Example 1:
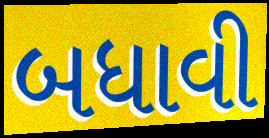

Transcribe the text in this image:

બધાવી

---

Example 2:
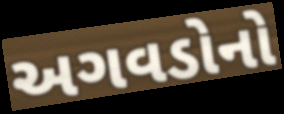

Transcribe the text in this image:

અગવડોનો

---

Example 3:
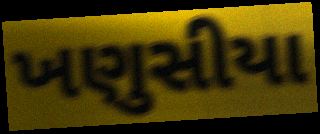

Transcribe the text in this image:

ખણુસીયા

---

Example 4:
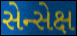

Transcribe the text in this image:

સેન્સેક્ષ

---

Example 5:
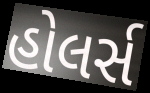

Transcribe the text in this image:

હોલર્સ